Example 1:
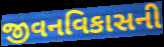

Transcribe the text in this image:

જીવનવિકાસની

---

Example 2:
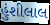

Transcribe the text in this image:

હુંશીલાલ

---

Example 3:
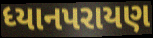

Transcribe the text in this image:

ધ્યાનપરાયણ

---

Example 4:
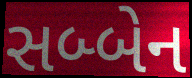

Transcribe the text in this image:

સબ્બેન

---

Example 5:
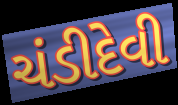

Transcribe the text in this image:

ચંડીદેવી